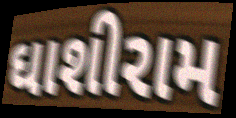
ઘાશીરામ